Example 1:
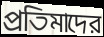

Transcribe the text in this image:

প্রতিমাদের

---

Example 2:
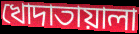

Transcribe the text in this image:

খোদাতায়ালা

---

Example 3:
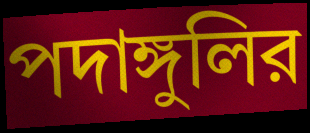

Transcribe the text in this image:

পদাঙ্গুলির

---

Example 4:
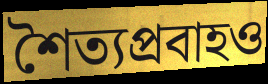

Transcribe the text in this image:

শৈত্যপ্রবাহও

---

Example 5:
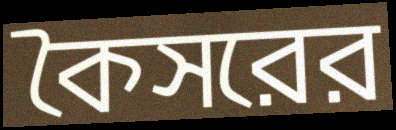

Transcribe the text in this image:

কৈসরের